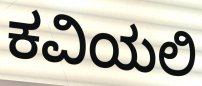
ಕವಿಯಲಿ